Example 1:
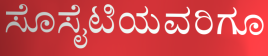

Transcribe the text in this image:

ಸೊಸೈಟಿಯವರಿಗೂ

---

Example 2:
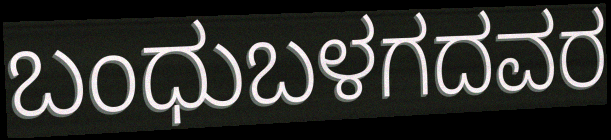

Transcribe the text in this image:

ಬಂಧುಬಳಗದವರ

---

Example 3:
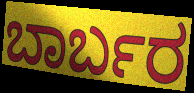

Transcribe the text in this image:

ಬಾರ್ಬರ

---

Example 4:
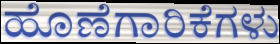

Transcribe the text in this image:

ಹೊಣೆಗಾರಿಕೆಗಳು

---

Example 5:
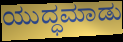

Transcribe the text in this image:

ಯುದ್ಧಮಾಡು